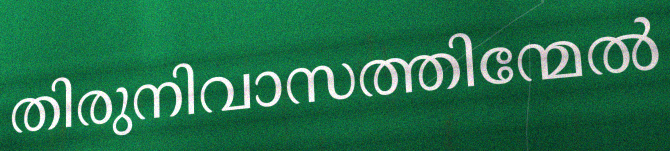
തിരുനിവാസത്തിന്മേൽ